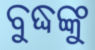
ବୁଦ୍ଧଙ୍କୁ